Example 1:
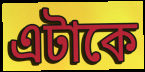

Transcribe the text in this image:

এটাকে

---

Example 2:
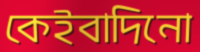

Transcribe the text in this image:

কেইবাদিনো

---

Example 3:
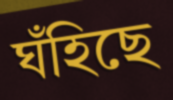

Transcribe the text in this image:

ঘঁহিছে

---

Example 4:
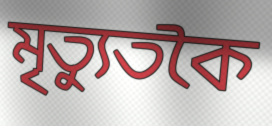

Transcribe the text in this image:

মৃত্যুতকৈ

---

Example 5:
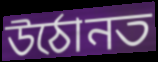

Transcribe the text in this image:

উঠোনত